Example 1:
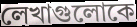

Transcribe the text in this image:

লেখাগুলোকে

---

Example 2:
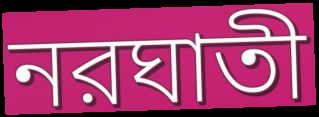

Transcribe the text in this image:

নরঘাতী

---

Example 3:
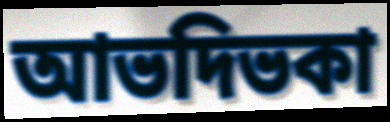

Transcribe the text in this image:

আভদিভকা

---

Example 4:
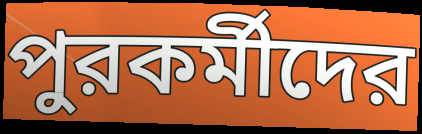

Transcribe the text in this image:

পুরকর্মীদের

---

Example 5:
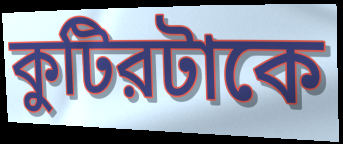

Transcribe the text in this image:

কুটিরটাকে